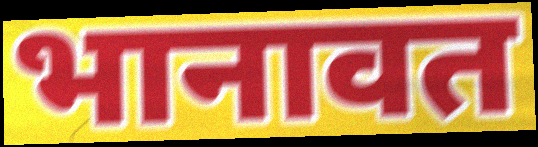
भानावत